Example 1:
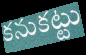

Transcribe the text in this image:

కనుకట్టు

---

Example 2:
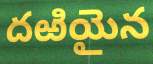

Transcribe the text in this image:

దఱియైన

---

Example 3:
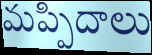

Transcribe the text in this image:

మప్పిదాలు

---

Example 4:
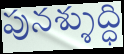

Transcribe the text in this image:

పునశ్శుద్ధి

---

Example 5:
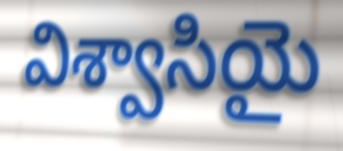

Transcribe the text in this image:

విశ్వాసియై